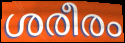
ശരീരം